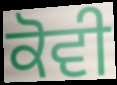
ਕੋਵੀ